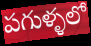
పగుళ్ళలో